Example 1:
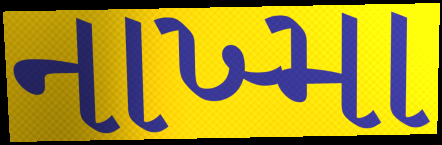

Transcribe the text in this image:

નાખ્મા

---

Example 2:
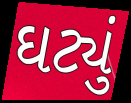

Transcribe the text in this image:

ઘટ્યું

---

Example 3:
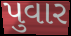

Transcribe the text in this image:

પુવાર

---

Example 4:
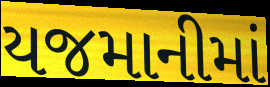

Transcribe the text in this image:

યજમાનીમાં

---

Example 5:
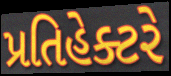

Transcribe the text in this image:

પ્રતિહેક્ટરે